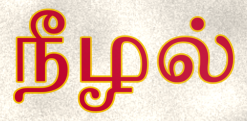
நீழல்